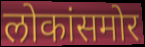
लोकांसमोर